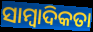
ସାମ୍ୱାଦିକତା